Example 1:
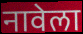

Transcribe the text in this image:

नावेला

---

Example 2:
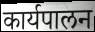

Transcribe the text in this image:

कार्यपालन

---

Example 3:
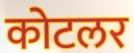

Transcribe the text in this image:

कोटलर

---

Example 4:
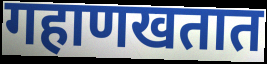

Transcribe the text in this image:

गहाणखतात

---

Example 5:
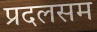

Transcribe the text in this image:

प्रदलसम